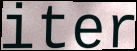
iter